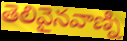
తెలివైనవాణ్ని